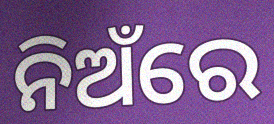
ନିଅଁରେ